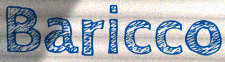
Baricco